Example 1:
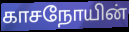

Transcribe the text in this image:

காசநோயின்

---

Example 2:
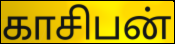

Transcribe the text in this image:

காசிபன்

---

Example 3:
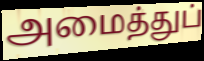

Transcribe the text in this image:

அமைத்துப்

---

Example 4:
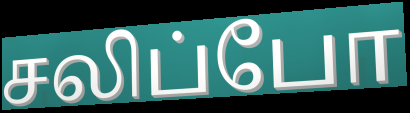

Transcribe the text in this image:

சலிப்போ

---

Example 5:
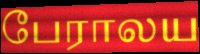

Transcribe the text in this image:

பேராலய